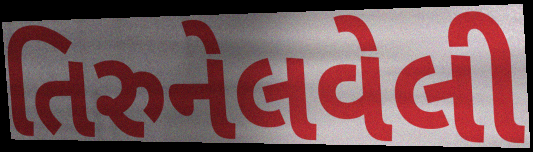
તિરુનેલવેલી